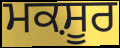
ਮਕ਼ਸੂਰ